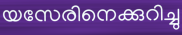
യസേരിനെക്കുറിച്ചു